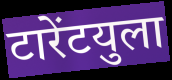
टारेंटयुला